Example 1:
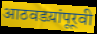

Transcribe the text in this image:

आठवडय़ांपूर्वी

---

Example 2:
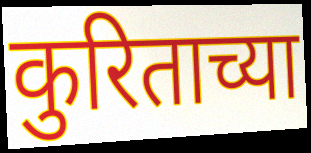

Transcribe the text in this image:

कुरिताच्या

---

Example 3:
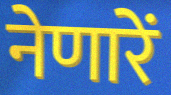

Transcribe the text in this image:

नेणारें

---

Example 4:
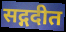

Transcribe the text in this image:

सद्गदीत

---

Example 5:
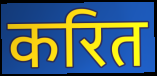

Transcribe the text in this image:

करित